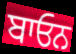
ਬਾਓਨ